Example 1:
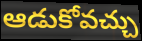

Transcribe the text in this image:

ఆడుకోవచ్చు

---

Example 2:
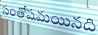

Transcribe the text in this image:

సంతోషమయినది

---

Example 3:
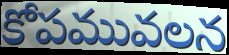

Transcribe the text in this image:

కోపమువలన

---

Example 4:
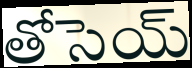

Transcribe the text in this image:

తోసెయ్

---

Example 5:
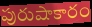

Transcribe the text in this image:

పురుషాకారం